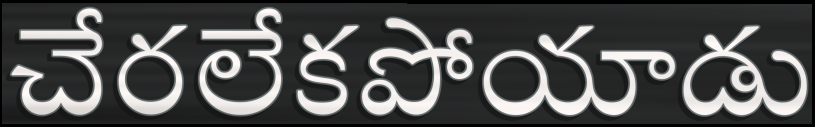
చేరలేకపోయాడు